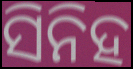
ସିନିହ